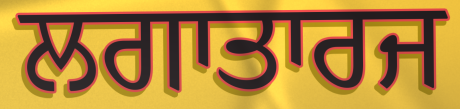
ਲਗਾਤਾਰਜ